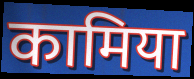
कामिया